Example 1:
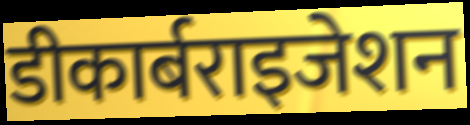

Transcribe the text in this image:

डीकार्बराइजेशन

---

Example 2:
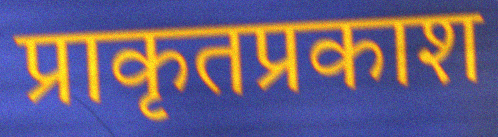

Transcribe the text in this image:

प्राकृतप्रकाश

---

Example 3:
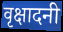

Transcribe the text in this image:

वृक्षादनी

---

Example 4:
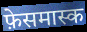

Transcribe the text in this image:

फ़ेसमास्क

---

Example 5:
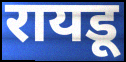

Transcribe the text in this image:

रायडू